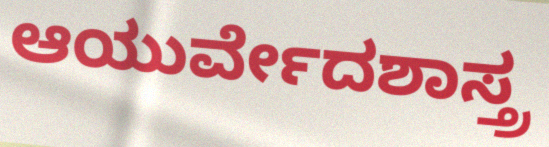
ಆಯುರ್ವೇದಶಾಸ್ತ್ರ